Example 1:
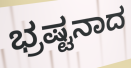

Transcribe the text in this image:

ಭ್ರಷ್ಟನಾದ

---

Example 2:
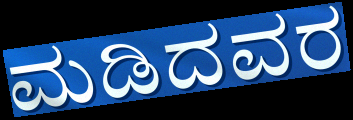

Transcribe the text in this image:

ಮಡಿದವರ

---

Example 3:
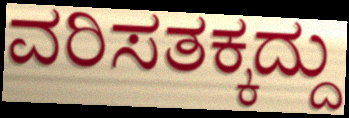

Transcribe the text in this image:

ವರಿಸತಕ್ಕದ್ದು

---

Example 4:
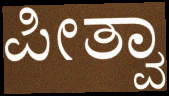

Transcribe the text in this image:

ಪೀತ್ವಾ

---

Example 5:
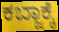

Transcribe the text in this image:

ಕಬ್ಜಾಕ್ಕೆ